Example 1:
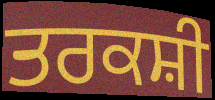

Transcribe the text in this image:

ਤਰਕਸ਼ੀ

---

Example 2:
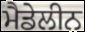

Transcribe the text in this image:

ਮੈਡੇਲੀਨ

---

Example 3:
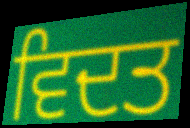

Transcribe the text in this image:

ਵਿਦਤ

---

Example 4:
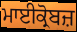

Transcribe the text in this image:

ਮਾਈਕ੍ਰੋਬਜ਼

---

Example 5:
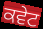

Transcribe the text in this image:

ਕਵੇਟ